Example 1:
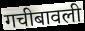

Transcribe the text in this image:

गचीबावली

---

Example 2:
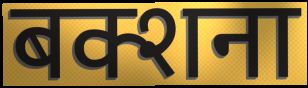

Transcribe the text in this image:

बक्शना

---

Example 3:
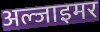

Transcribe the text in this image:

अल्जाइमर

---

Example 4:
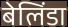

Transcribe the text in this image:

बेलिंडा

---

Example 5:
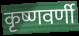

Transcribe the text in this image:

कृष्णवर्णी